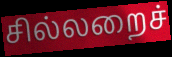
சில்லறைச்